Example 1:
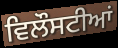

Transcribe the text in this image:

ਵਿਲੌਸਟੀਆਂ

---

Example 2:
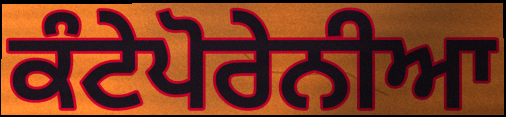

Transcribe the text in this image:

ਕੰਟੇਪੋਰੇਨੀਆ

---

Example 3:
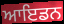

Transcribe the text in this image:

ਆਇਡਨ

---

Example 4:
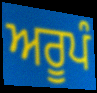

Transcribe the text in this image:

ਅਰੂਪੰ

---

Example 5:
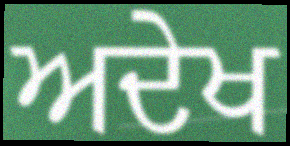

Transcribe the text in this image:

ਅਦੇਖ